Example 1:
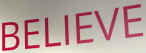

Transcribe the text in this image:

BELIEVE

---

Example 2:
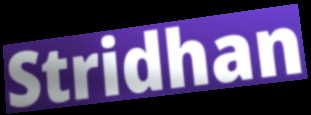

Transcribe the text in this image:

Stridhan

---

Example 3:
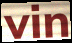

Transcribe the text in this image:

vin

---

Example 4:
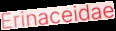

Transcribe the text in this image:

Erinaceidae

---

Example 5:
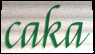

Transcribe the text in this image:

caka